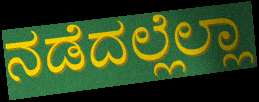
ನಡೆದಲ್ಲೆಲ್ಲಾ